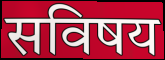
सविषय